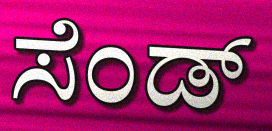
ಸೆಂಡ್